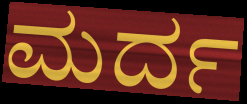
ಮರ್ದ